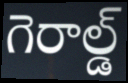
గెరాల్డ్